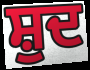
ਸ਼ੁਦ